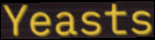
Yeasts